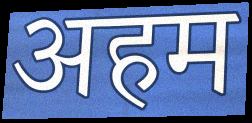
अहम